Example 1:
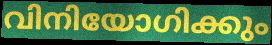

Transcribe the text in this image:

വിനിയോഗിക്കും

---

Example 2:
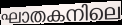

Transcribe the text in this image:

ഘാതകനിലെ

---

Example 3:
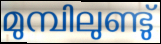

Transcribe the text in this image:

മുമ്പിലുണ്ടു്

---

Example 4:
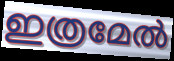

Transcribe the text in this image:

ഇത്രമേൽ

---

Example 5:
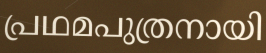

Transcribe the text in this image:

പ്രഥമപുത്രനായി